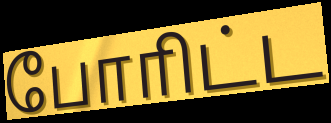
போரிட்ட